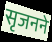
सृजनने